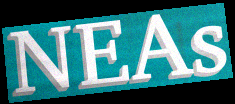
NEAs